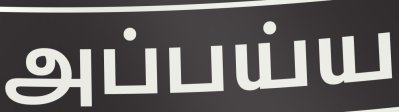
அப்பய்ய